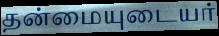
தன்மையுடையர்